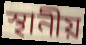
স্থানীয়